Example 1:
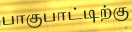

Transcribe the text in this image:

பாகுபாட்டிற்கு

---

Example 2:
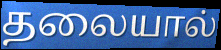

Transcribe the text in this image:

தலையால்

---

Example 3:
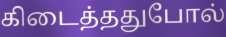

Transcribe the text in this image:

கிடைத்ததுபோல்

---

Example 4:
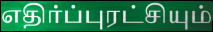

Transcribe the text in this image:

எதிர்ப்புரட்சியும்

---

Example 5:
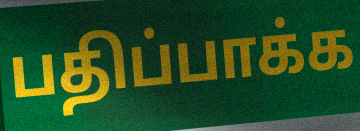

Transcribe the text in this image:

பதிப்பாக்க